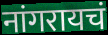
नांगरायचं